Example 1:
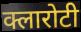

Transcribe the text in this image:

क्लारोटी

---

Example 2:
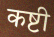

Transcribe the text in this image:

कष्टी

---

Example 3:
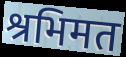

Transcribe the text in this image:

श्रभिमत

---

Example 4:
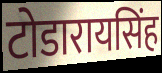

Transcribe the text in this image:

टोडारायसिंह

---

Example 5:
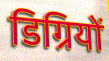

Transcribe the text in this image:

डिग्रियों